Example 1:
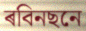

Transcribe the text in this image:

ৰবিনছনে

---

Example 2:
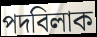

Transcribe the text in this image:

পদবিলাক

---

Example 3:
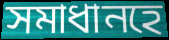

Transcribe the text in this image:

সমাধানহে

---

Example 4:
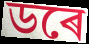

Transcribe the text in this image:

ডৰে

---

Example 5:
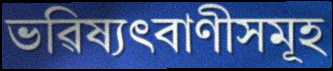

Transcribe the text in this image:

ভৱিষ্যৎবাণীসমূহ